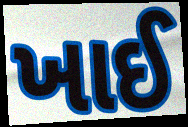
ખાઈ